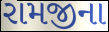
રામજીના